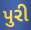
પુરી